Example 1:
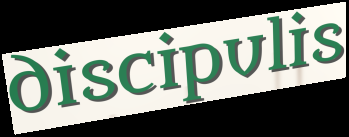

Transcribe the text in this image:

discipulis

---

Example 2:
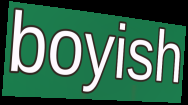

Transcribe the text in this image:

boyish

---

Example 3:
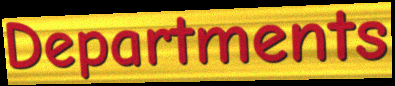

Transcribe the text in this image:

Departments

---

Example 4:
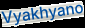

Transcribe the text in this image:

Vyakhyano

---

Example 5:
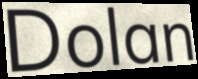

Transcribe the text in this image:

Dolan